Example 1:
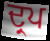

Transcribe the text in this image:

ਦ੍ਰਪ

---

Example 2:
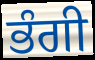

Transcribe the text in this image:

ਭੰਗੀ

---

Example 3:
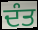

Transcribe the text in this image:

ਦੰਤ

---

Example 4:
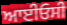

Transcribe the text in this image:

ਆਈਓਸੀ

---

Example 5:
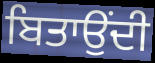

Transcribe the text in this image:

ਬਿਤਾਉਂਦੀ